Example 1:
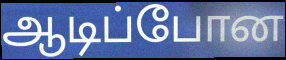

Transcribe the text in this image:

ஆடிப்போன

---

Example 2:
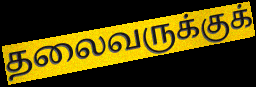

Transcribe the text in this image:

தலைவருக்குக்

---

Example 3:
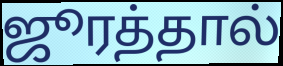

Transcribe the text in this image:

ஜூரத்தால்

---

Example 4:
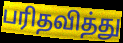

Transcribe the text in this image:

பரிதவித்து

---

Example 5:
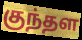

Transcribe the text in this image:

குந்தள